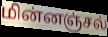
மின்னஞ்சல்